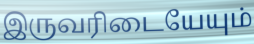
இருவரிடையேயும்